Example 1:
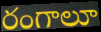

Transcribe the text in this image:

రంగాలూ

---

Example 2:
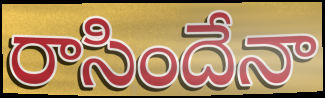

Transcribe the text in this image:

రాసిందేనా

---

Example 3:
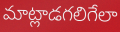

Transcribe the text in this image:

మాట్లాడగలిగేలా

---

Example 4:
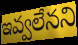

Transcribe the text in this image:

ఇవ్వలేనని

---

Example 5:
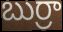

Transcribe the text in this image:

బుర్రా